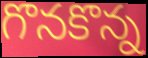
గొనకొన్న